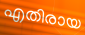
എതിരായ